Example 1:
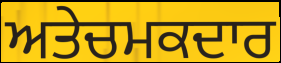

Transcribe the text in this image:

ਅਤੇਚਮਕਦਾਰ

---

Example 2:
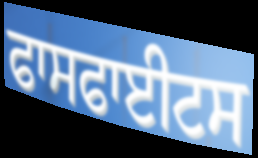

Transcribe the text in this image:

ਫਾਸਫਾਈਟਸ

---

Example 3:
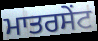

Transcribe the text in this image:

ਮਾਤਰਸੇਂਟ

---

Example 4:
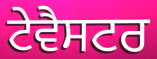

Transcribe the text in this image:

ਟੇਵੈਸਟਰ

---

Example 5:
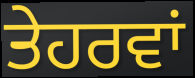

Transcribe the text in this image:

ਤੇਹਰਵਾਂ